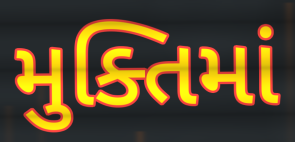
મુક્તિમાં